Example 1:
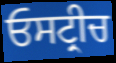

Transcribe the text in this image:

ਓਸਟ੍ਰੀਚ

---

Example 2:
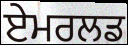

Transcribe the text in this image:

ਏਮਰਲਡ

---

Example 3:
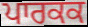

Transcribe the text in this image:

ਪਾਰਕਕ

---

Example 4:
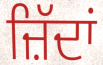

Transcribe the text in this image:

ਜ਼ਿੱਦਾਂ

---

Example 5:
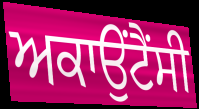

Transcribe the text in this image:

ਅਕਾਉਂਟੈਂਸੀ